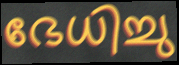
ഭേധിച്ചു